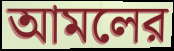
আমলের